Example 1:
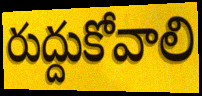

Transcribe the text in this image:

రుద్దుకోవాలి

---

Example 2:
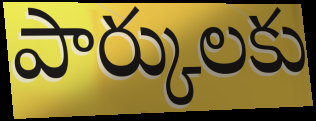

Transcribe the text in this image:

పార్కులకు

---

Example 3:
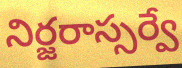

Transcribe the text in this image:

నిర్జరాస్సర్వే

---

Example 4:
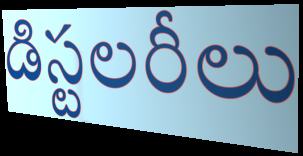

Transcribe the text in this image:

డిస్టలరీలు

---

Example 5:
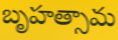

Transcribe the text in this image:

బృహత్సామ